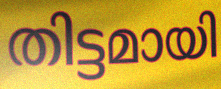
തിട്ടമായി